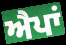
ਐਪਾਂ